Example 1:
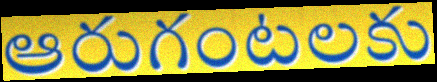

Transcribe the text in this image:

ఆరుగంటలకు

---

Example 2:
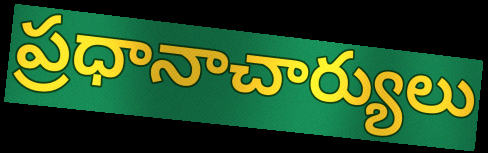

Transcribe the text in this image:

ప్రధానాచార్యులు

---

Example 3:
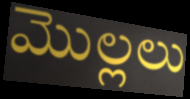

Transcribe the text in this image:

మొల్లలు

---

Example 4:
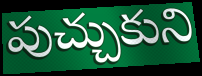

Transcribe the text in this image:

పుచ్చుకుని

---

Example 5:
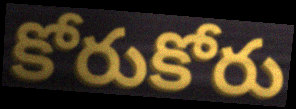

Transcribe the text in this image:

కోరుకోరు